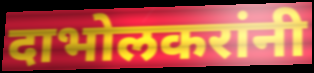
दाभोलकरांनी